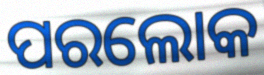
ପରଲୋକ